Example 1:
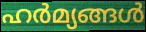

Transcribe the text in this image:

ഹർമ്യങ്ങൾ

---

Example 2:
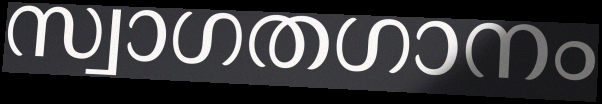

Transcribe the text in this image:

സ്വാഗതഗാനം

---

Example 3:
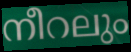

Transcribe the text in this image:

നീറലും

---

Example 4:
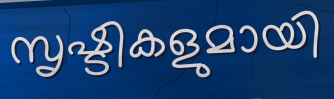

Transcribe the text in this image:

സൃഷ്ടികളുമായി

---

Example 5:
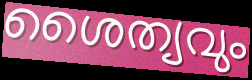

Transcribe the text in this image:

ശൈത്യവും